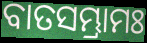
ବାତସମ୍ଭ୍ରାମଃ